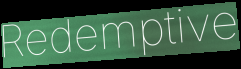
Redemptive